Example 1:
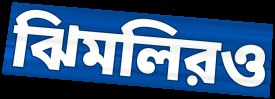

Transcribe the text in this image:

ঝিমলিরও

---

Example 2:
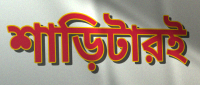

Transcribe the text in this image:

শাড়িটারই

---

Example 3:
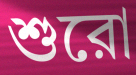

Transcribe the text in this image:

শুরো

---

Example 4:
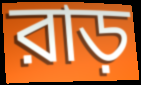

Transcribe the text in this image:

রাড়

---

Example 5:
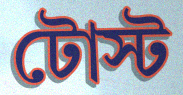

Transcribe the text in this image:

টোস্ট